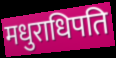
मधुराधिपति